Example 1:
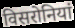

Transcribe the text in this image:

विसरोनियां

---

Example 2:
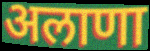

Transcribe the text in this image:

अलाणा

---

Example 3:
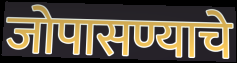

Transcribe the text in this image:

जोपासण्याचे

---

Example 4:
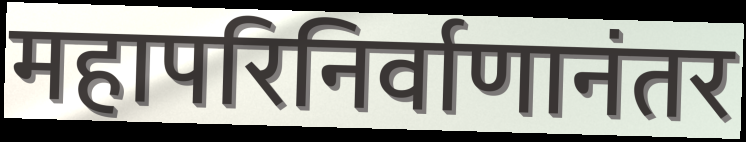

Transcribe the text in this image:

महापरिनिर्वाणानंतर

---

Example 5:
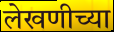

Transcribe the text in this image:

लेखणीच्या